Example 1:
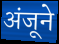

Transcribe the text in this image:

अंजूने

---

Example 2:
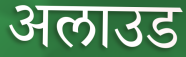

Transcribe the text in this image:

अलाउड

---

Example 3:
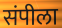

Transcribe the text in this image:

संपीला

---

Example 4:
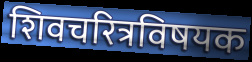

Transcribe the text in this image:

शिवचरित्रविषयक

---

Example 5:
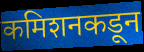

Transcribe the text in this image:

कमिशनकडून